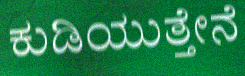
ಕುಡಿಯುತ್ತೇನೆ